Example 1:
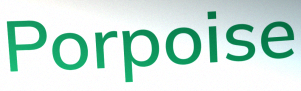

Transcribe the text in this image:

Porpoise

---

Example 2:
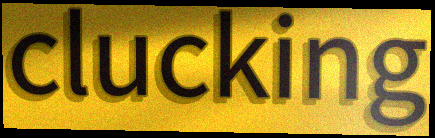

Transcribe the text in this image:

clucking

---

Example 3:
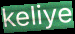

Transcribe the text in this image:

keliye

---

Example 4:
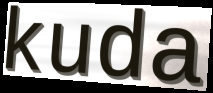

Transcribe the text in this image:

kuda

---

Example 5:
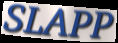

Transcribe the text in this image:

SLAPP